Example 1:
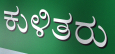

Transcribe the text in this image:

ಕುಳಿತರು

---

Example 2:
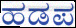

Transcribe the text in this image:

ಹಡಪ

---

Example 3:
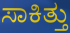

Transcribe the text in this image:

ಸಾಕಿತ್ತು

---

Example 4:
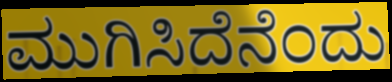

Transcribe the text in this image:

ಮುಗಿಸಿದೆನೆಂದು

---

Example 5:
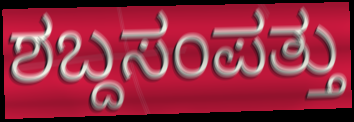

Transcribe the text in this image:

ಶಬ್ದಸಂಪತ್ತು